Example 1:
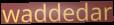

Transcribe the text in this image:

waddedar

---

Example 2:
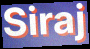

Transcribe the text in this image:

Siraj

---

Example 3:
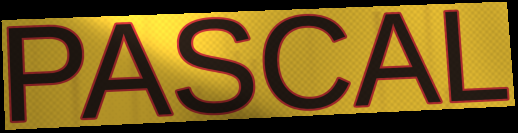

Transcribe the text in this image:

PASCAL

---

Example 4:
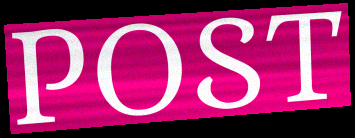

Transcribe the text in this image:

POST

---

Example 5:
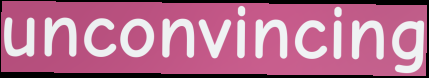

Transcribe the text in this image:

unconvincing